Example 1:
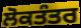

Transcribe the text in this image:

ਲੋਕਤੰਤਰ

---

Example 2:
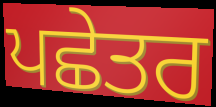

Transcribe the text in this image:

ਪਛੇਤਰ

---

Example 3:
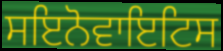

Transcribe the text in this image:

ਸਇਨੋਵਾਇਟਿਸ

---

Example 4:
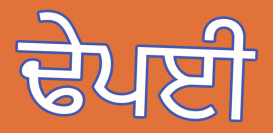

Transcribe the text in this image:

ਢੇਪਈ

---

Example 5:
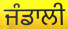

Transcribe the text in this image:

ਜੰਡਾਲੀ